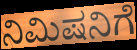
ನಿಮಿಷನಿಗೆ